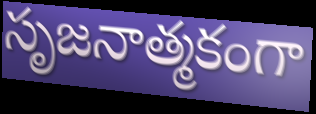
సృజనాత్మకంగా